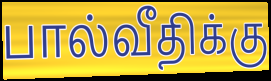
பால்வீதிக்கு